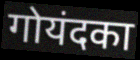
गोयंदका